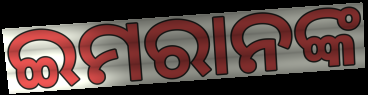
ଇମରାନଙ୍କ